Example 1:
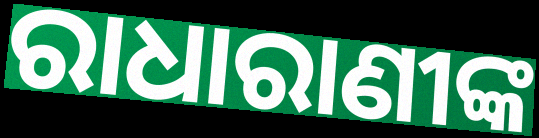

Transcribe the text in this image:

ରାଧାରାଣୀଙ୍କ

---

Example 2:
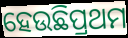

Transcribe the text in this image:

ହେଉଛିପ୍ରଥମ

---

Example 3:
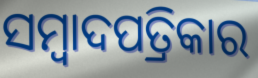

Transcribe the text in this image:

ସମ୍ବାଦପତ୍ରିକାର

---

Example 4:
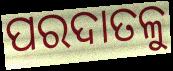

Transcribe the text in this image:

ପରଦାତଳୁ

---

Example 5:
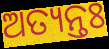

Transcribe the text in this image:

ଅତ୍ୟନ୍ତଃ